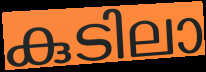
കുടിലാ